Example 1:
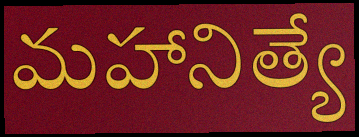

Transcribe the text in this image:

మహానిత్యే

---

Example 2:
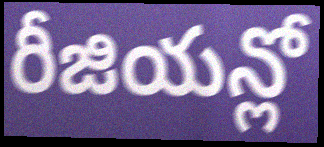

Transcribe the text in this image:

రీజియన్లో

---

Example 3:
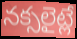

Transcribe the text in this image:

నక్సలైట్లే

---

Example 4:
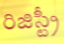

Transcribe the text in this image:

రిజిస్ట్రీ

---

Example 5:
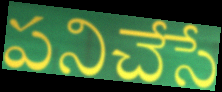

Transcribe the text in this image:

పనిచేసే